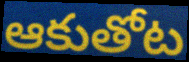
ఆకుతోట